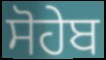
ਸੋਹੇਬ